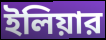
ইলিয়ার